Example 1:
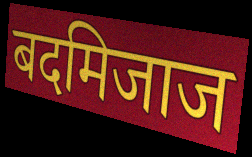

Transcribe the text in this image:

बदमिजाज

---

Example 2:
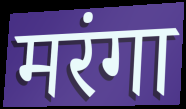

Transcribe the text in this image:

मरंगा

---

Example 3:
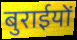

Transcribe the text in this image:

बुराईयों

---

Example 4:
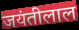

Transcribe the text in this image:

जयंतीलाल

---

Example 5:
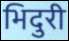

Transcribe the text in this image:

भिदुरी